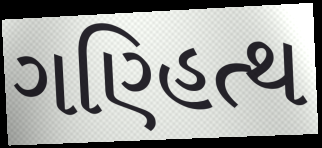
ગણ્હિત્થ